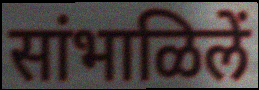
सांभाळिलें